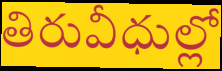
తిరువీధుల్లో